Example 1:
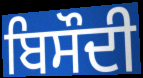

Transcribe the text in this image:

ਬਿਸੌਦੀ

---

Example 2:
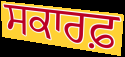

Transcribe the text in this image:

ਸਕਾਰਫ਼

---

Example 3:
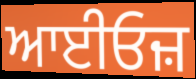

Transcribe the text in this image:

ਆਈਓਜ਼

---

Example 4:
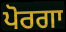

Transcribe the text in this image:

ਪੋਰਗਾ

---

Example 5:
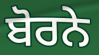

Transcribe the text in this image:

ਬੋਰਨੇ